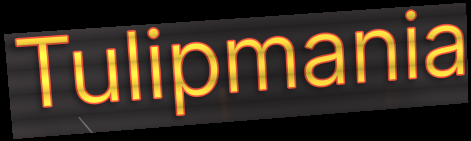
Tulipmania